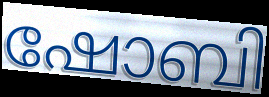
ഷോബി